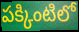
పక్కింటిలో